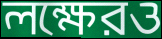
লক্ষেরও